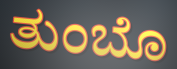
ತುಂಬೊ